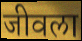
जीवला